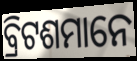
ବ୍ରିଟଶମାନେ